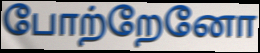
போற்றேனோ